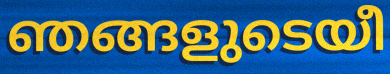
ഞങ്ങളുടെയീ